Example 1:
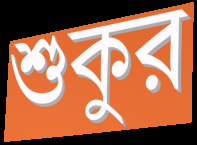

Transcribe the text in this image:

শুকুর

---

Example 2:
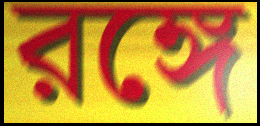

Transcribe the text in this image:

রঙ্গে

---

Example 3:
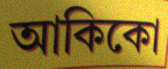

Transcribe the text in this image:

আকিকো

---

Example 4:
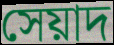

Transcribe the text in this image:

সেয়াদ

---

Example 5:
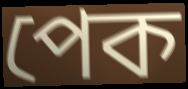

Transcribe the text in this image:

পেক